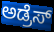
ಅಡ್ರೆಸ್